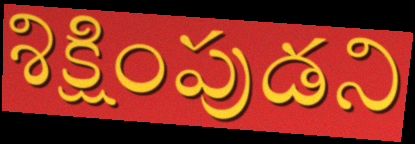
శిక్షింపుడని